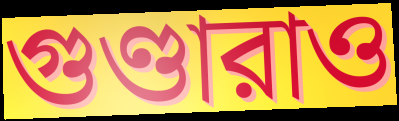
গুণ্ডারাও